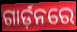
ଗାର୍ଡ଼ନରେ